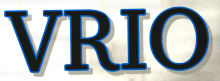
VRIO